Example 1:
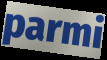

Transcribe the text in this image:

parmi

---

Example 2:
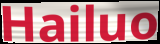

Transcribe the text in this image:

Hailuo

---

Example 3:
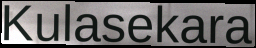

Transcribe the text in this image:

Kulasekara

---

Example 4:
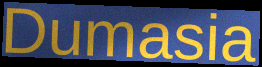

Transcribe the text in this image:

Dumasia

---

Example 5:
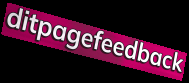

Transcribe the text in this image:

ditpagefeedback